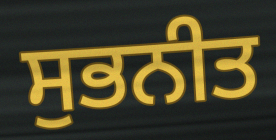
ਸੁਭਨੀਤ